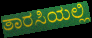
ತಾರಸಿಯಲ್ಲಿ